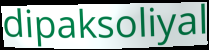
dipaksoliyal